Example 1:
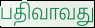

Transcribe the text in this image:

பதிவாவது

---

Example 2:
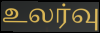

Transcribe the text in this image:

உலர்வு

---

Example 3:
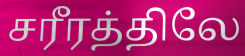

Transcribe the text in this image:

சரீரத்திலே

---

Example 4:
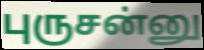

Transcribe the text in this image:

புருசன்னு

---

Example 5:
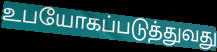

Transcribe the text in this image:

உபயோகப்படுத்துவது